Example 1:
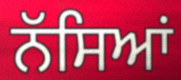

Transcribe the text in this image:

ਨੱਸਿਆਂ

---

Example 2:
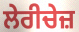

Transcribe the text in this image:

ਲੇਰੀਚੇਜ਼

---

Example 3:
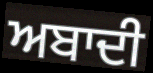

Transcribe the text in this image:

ਅਬਾਦੀ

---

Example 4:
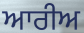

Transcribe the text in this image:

ਆਰੀਅ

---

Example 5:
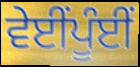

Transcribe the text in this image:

ਵੇਈਂਪੂੰਈਂ